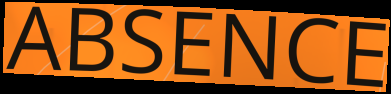
ABSENCE